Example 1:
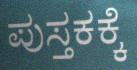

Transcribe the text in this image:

ಪುಸ್ತಕಕ್ಕೆ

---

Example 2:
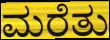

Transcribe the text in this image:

ಮರೆತು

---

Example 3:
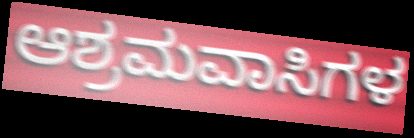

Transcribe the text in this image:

ಆಶ್ರಮವಾಸಿಗಳ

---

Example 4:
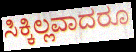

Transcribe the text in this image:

ಸಿಕ್ಕಿಲ್ಲವಾದರೂ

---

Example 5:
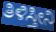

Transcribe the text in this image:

ತಿಳಿಸ್ತೀನಿ